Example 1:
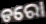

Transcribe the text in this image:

ଡରୋ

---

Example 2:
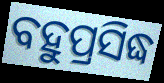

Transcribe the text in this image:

ବହୁପ୍ରସିଦ୍ଧ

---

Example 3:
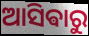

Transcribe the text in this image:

ଆସିଵାରୁ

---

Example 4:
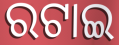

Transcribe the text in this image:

ରଟାଇ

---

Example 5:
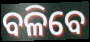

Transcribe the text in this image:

ବଳିବେ